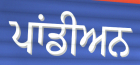
ਪਾਂਡੀਅਨ